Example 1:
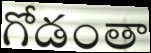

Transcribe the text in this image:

గోడంతా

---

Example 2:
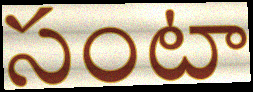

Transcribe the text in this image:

సంటా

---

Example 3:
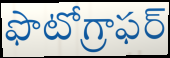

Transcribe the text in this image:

ఫొటోగ్రాఫర్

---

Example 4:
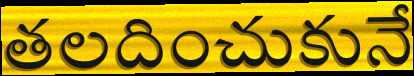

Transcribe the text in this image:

తలదించుకునే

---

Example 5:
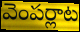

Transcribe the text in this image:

వెంపర్లాట